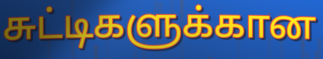
சுட்டிகளுக்கான